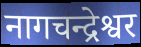
नागचन्द्रेश्वर